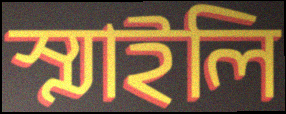
স্মাইলি